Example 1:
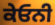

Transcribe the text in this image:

ਕੇਓਨੀ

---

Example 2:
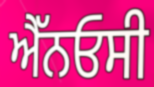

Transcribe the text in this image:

ਐੱਨਓਸੀ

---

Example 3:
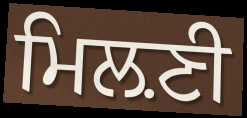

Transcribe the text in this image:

ਮਿਲ਼ਣੀ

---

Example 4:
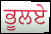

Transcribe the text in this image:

ਭੂਲਏ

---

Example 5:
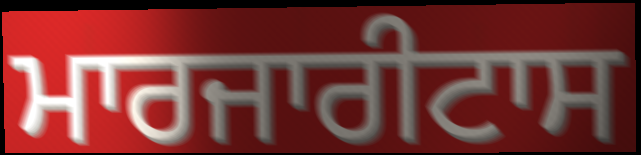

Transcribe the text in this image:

ਮਾਰਜਾਰੀਟਾਸ